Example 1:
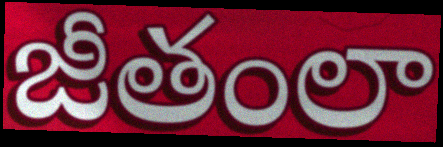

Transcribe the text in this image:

జీతంలా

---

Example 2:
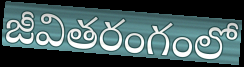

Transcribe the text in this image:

జీవితరంగంలో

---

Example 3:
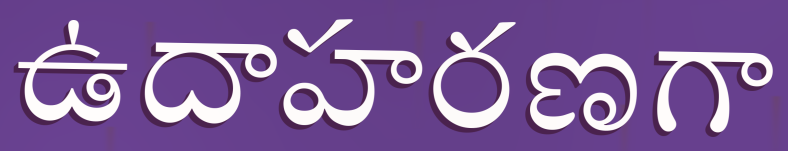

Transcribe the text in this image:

ఉదాహరణగా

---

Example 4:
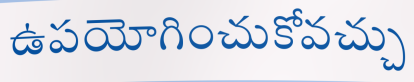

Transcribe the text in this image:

ఉపయోగించుకోవచ్చు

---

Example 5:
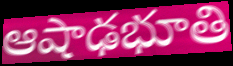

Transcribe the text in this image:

ఆషాఢభూతి